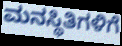
ಮನಸ್ಥಿತಿಗಳಿಗೆ